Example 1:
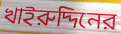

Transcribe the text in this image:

খাইরুদ্দিনের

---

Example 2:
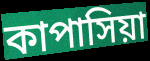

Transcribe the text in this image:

কাপাসিয়া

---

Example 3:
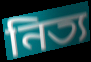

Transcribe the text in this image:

নিত্য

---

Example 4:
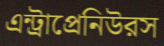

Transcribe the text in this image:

এন্ট্রাপ্রেনিউরস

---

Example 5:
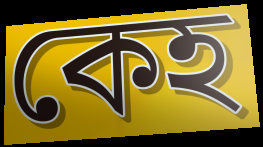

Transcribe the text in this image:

কেহ